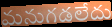
మనుగడలేదు